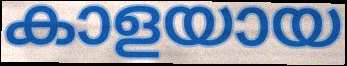
കാളയായ